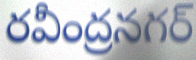
రవీంద్రనగర్